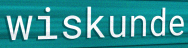
wiskunde